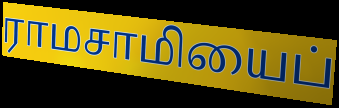
ராமசாமியைப்